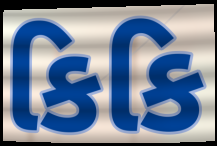
કિકિ